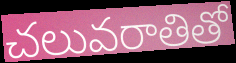
చలువరాతితో